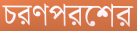
চরণপরশের